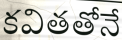
కవితతోనే